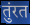
तुंरत